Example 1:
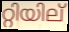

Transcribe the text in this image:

റ്റിയില്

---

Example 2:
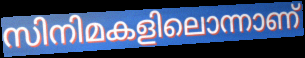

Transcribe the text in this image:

സിനിമകളിലൊന്നാണ്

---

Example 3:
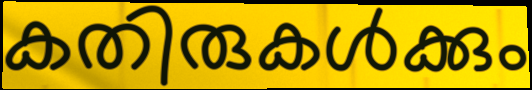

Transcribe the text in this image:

കതിരുകൾക്കും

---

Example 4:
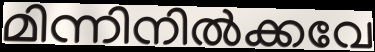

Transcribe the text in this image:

മിന്നിനിൽക്കവേ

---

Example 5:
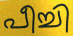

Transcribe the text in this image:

പീച്ചി